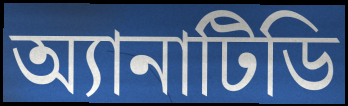
অ্যানাটিডি